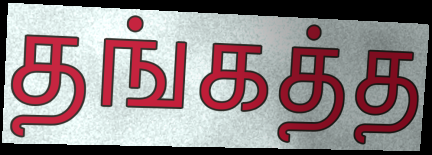
தங்கத்த